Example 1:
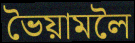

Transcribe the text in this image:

ভৈয়ামলৈ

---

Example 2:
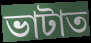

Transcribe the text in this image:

ভাটাত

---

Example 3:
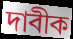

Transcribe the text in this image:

দাবীক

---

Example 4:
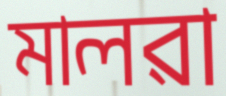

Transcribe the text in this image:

মালৱা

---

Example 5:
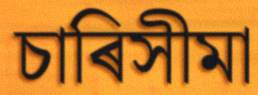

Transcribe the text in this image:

চাৰিসীমা